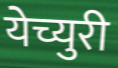
येच्युरी